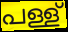
പള്ള്